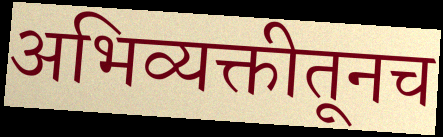
अभिव्यक्तीतूनच